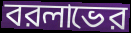
বরলাভের